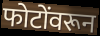
फोटोंवरून